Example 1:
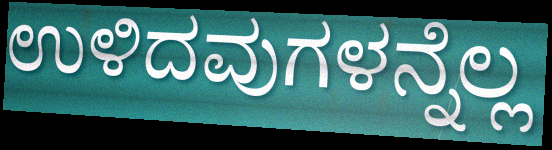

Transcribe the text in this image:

ಉಳಿದವುಗಳನ್ನೆಲ್ಲ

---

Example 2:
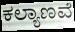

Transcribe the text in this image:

ಕಲ್ಯಾಣವೆ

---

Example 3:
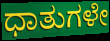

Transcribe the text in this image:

ಧಾತುಗಳೇ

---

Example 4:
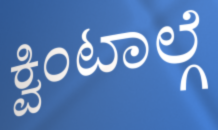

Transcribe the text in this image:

ಕ್ವಿಂಟಾಲ್ಗೆ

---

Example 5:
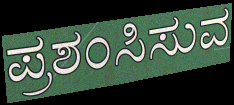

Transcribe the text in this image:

ಪ್ರಶಂಸಿಸುವ